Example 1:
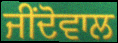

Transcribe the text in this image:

ਜੀਂਦੋਵਾਲ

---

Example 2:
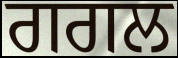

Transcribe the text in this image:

ਗਗਲ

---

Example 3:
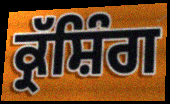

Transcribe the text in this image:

ਕ੍ਰੱਸ਼ਿੰਗ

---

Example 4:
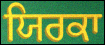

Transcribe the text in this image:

ਯਿਰਕਾ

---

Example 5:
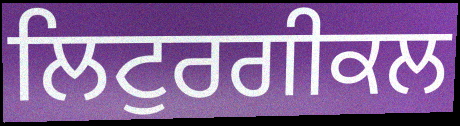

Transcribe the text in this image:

ਲਿਟੁਰਗੀਕਲ